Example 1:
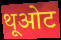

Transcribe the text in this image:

थूओट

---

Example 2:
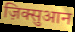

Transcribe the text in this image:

ज़िक्सुआन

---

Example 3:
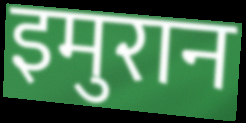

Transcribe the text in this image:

इमुरान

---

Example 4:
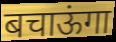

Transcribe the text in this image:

बचाऊंगा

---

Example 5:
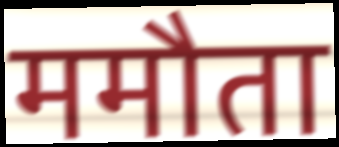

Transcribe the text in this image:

ममौता